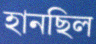
হানছিল